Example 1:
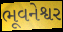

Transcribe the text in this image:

ભૂવનેશ્વર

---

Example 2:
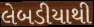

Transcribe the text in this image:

લેબડીયાથી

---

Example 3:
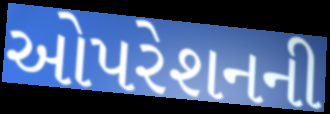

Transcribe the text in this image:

ઓપરેશનની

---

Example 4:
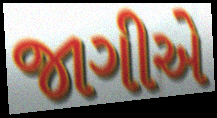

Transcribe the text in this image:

જાગીએ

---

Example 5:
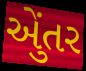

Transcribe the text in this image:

એુંતર